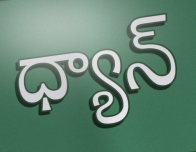
ధ్యాన్